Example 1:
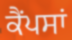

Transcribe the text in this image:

ਕੈਂਪਸਾਂ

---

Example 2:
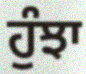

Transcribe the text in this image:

ਹੁੰਝਾ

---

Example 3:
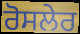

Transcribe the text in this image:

ਰੋਸਲੇਰ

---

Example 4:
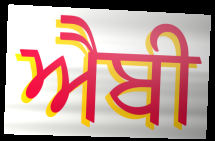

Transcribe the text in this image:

ਐਬੀ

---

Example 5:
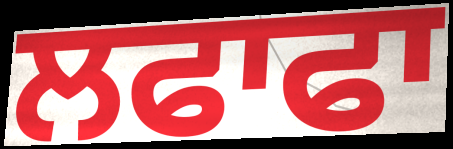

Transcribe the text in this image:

ਲਫਾਫਾ